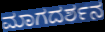
ಮಾಗದರ್ಶನ